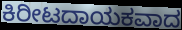
ಕಿರೀಟದಾಯಕವಾದ